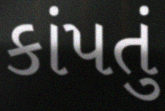
કાંપતું